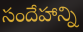
సందేహాన్ని